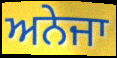
ਅਨੇਜਾ